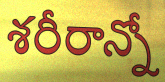
శరీరాన్నో